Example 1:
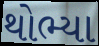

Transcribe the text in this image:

થોભ્યા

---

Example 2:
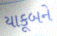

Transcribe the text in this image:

યાકૂબને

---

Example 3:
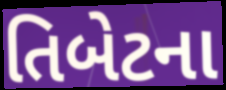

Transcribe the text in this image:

તિબેટના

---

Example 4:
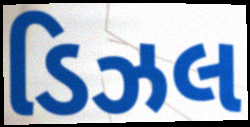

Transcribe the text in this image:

ડિઝલ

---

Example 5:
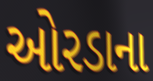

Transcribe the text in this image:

ઓરડાના